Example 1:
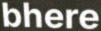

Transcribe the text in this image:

bhere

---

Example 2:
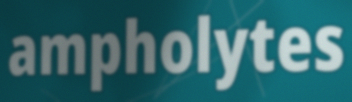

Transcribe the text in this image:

ampholytes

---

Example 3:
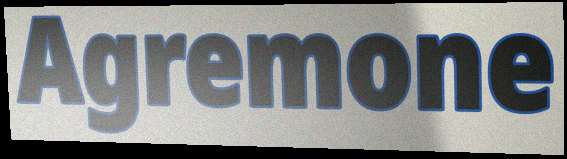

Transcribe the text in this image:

Agremone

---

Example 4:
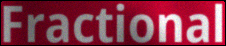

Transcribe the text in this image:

Fractional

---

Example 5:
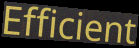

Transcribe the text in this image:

Efficient